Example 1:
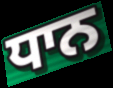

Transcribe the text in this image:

ਧਾਨ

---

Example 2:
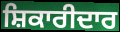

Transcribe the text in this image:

ਸ਼ਿਕਾਰੀਦਾਰ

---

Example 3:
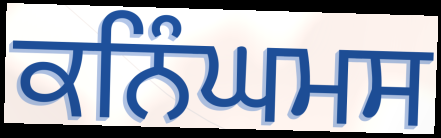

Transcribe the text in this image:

ਕਨਿੰਘਮਸ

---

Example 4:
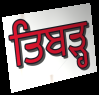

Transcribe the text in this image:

ਤਿਬੜ੍ਹ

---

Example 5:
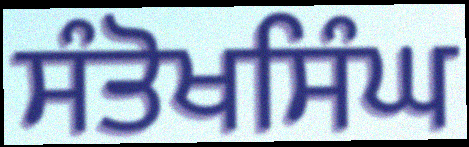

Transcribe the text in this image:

ਸੰਤੋਖਸਿੰਘ